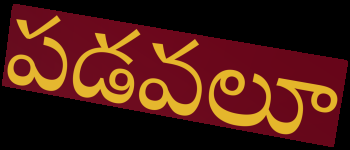
పడవలూ